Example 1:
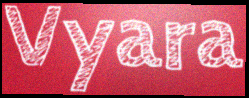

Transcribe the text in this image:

Vyara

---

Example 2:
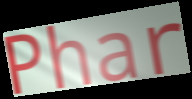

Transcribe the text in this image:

Phar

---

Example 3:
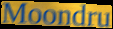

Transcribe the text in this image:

Moondru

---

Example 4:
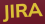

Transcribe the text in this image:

JIRA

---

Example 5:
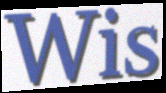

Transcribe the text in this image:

Wis